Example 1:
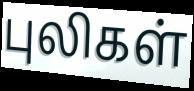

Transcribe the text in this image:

புலிகள்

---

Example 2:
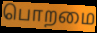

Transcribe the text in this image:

பொறமை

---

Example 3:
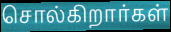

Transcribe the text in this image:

சொல்கிறார்கள்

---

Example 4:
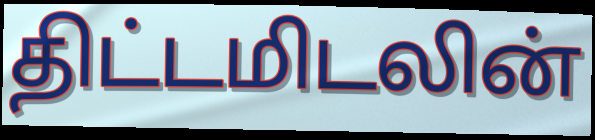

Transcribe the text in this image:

திட்டமிடலின்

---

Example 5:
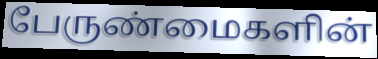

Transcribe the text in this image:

பேருண்மைகளின்